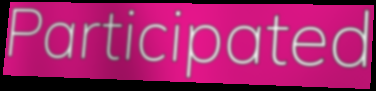
Participated